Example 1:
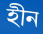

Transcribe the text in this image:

হীন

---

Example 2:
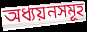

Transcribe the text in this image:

অধ্যয়নসমূহ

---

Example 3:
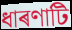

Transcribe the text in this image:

ধাৰণাটি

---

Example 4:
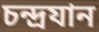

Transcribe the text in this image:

চন্দ্ৰযান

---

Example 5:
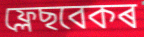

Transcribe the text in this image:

ফ্লেছবেকৰ